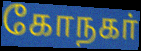
கோநகர்